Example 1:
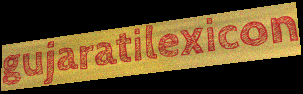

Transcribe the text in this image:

gujaratilexicon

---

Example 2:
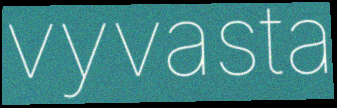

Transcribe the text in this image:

vyvasta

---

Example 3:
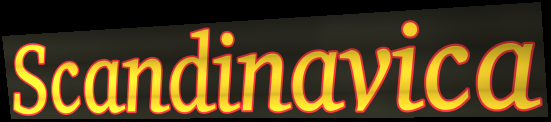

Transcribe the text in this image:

Scandinavica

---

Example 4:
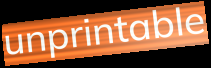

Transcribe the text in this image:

unprintable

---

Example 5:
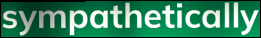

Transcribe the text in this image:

sympathetically